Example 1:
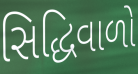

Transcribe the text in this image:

સિદ્ધિવાળો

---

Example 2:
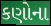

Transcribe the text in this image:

કણોના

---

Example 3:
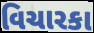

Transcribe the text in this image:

વિચારકા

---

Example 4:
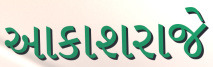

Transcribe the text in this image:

આકાશરાજે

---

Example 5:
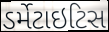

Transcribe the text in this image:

ડર્મેટાઇટિસ